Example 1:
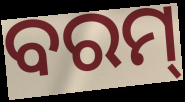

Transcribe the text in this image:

ବରମ୍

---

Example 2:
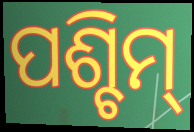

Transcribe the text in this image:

ପଶ୍ଚିମ୍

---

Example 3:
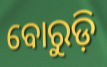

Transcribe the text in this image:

ବୋରୁଡ଼ି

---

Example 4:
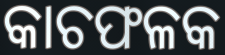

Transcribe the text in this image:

କାଚଫଳକ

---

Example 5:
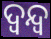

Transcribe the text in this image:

ଦ୍ବନ୍ଦ୍ବ